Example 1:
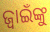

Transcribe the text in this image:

ଜ୍ବାଇଁଙ୍କୁ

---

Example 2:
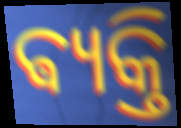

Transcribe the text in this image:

ଵ୍ଯକ୍ତି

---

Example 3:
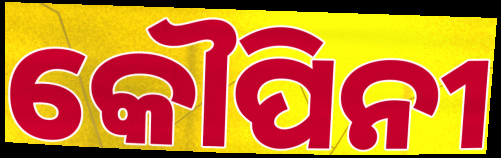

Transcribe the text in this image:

କୌପିନୀ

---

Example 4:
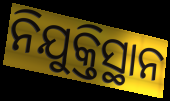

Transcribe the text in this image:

ନିଯୁକ୍ତିସ୍ଥାନ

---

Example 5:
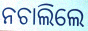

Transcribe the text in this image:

ନଚାଲିଲେ